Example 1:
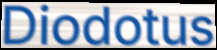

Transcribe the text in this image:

Diodotus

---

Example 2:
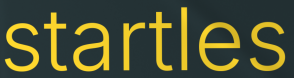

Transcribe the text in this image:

startles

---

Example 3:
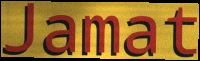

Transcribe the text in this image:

Jamat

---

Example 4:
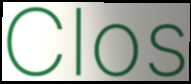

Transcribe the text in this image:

Clos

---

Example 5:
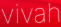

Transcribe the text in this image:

vivah